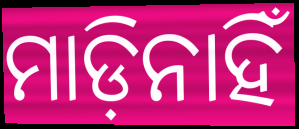
ମାଡ଼ିନାହିଁ